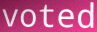
voted